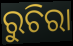
ରୁଚିରା